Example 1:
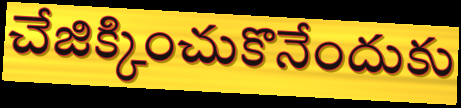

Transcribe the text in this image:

చేజిక్కించుకొనేందుకు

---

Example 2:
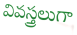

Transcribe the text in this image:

వివస్త్రలుగా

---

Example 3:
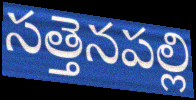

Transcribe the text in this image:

సత్తెనపల్లి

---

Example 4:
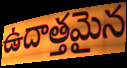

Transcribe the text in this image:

ఉదాత్తమైన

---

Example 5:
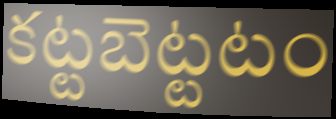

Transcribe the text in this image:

కట్టబెట్టటం